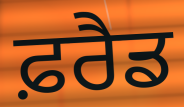
ਫ਼ਰੈਡ